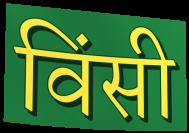
विंसी